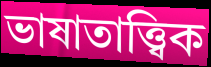
ভাষাতাত্ত্বিক